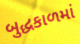
બુદ્ધકાળમાં